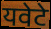
यवेटे